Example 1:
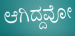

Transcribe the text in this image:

ಆಗಿದ್ದವೋ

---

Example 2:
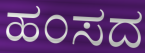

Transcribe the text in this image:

ಹಂಸದ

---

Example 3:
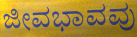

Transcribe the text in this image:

ಜೀವಭಾವವು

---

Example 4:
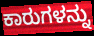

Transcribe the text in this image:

ಕಾರುಗಳನ್ನು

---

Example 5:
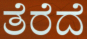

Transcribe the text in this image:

ತೆರೆದೆ